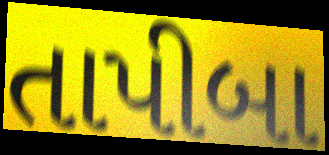
તાપીબા